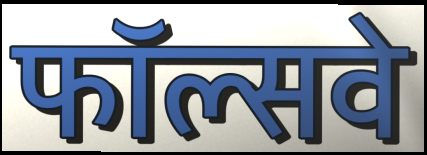
फॉल्सवे